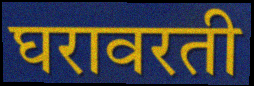
घरावरती